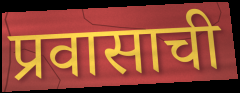
प्रवासाची